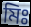
মিঃ